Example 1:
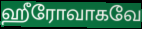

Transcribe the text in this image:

ஹீரோவாகவே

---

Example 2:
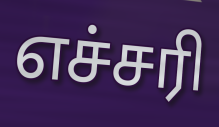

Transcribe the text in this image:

எச்சரி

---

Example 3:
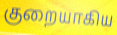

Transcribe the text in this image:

குறையாகிய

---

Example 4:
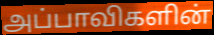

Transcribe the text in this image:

அப்பாவிகளின்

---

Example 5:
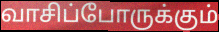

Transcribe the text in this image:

வாசிப்போருக்கும்